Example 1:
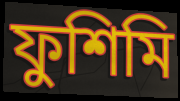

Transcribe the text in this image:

ফুশিমি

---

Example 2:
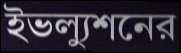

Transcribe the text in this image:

ইভল্যুশনের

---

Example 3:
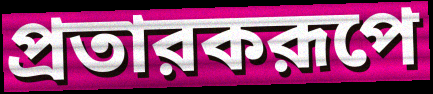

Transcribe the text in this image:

প্রতারকরূপে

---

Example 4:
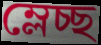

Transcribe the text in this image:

ম্লেচ্ছ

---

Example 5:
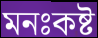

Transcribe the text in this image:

মনঃকষ্ট